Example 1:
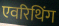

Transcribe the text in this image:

एवरिथिंग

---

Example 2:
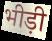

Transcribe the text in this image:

भीड़ी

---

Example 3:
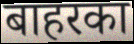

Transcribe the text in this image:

बाहरका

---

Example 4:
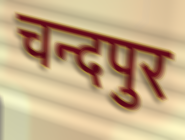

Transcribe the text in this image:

चन्दपुर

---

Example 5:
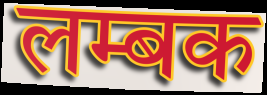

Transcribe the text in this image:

लम्बक